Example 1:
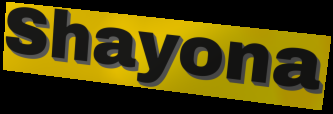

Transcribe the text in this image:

Shayona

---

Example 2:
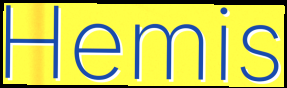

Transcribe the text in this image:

Hemis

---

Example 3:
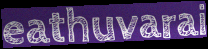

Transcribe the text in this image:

eathuvarai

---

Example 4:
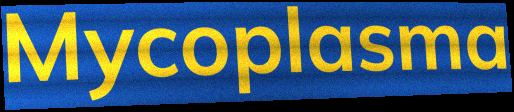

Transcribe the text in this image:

Mycoplasma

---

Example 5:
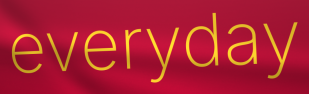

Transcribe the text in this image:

everyday